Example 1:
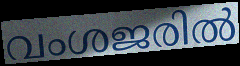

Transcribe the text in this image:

വംശജരിൽ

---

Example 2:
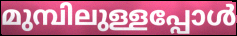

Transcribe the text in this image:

മുമ്പിലുള്ളപ്പോൾ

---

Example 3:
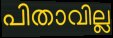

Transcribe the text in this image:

പിതാവില്ല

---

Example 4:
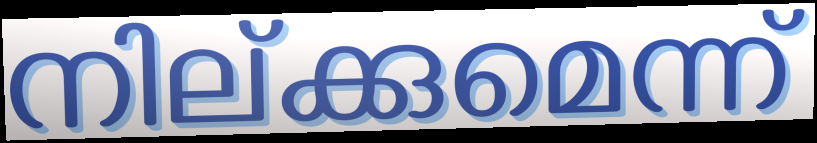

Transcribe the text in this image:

നില്ക്കുമെന്ന്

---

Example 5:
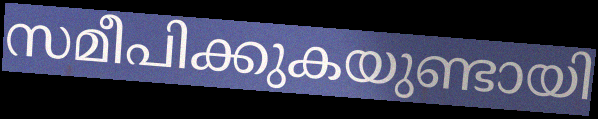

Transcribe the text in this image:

സമീപിക്കുകയുണ്ടായി